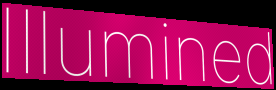
Illumined